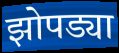
झोपड्या